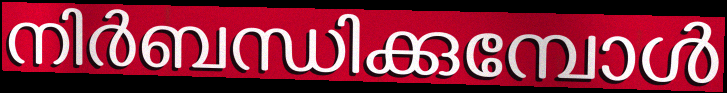
നിർബന്ധിക്കുമ്പോൾ